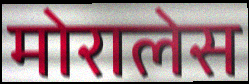
मोरालेस